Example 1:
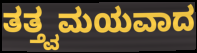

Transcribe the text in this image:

ತತ್ತ್ವಮಯವಾದ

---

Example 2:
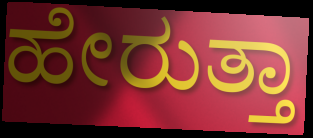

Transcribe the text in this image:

ಹೇರುತ್ತಾ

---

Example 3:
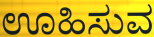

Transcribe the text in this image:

ಊಹಿಸುವ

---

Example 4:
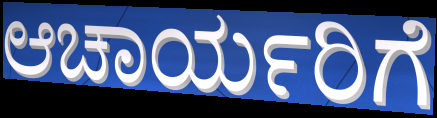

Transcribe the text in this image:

ಆಚಾರ್ಯರಿಗೆ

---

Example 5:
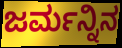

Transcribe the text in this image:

ಜರ್ಮನ್ನಿನ